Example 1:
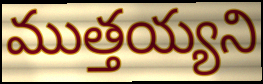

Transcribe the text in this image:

ముత్తయ్యని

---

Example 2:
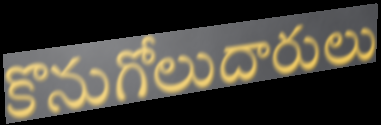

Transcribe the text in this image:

కొనుగోలుదారులు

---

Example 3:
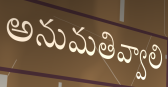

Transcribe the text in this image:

అనుమతివ్వాలి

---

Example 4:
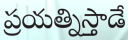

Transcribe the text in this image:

ప్రయత్నిస్తాడే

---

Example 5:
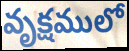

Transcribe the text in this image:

వృక్షములో